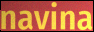
navina